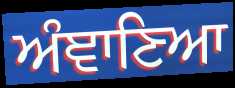
ਅੰਞਾਣਿਆ